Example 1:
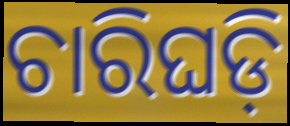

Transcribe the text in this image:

ଚାରିଘଡ଼ି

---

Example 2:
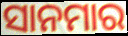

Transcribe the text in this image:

ସାନମାର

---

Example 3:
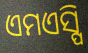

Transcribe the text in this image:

ଏମଏସ୍ପି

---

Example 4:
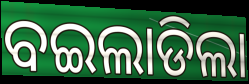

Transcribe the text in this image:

ବଇଲାଡିଲା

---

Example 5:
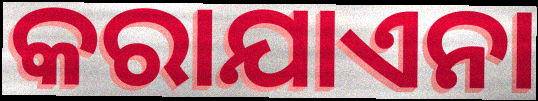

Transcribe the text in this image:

କରାଯାଏନା